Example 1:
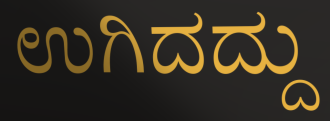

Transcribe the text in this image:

ಉಗಿದದ್ದು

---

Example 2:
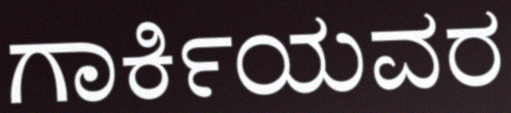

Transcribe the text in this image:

ಗಾರ್ಕಿಯವರ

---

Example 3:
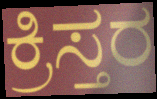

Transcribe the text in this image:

ಕ್ರಿಸ್ತರ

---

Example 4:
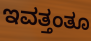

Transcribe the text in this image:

ಇವತ್ತಂತೂ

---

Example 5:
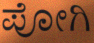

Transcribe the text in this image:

ಪೋಗಿ